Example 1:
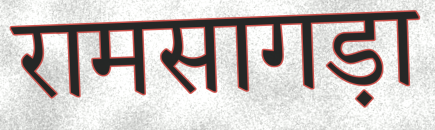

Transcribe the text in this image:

रामसागड़ा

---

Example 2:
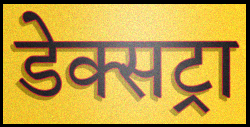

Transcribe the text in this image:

डेक्सट्रा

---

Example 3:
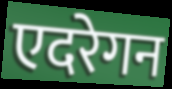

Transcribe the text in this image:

एदरेगन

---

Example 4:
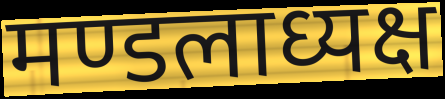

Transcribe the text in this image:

मण्डलाध्यक्ष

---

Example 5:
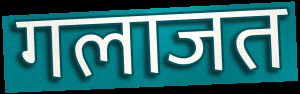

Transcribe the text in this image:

गलाजत